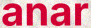
anar